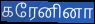
கரேனினா